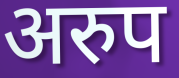
अरुप